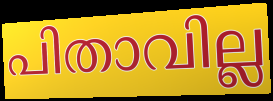
പിതാവില്ല